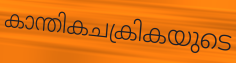
കാന്തികചക്രികയുടെ